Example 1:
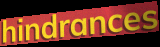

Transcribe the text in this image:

hindrances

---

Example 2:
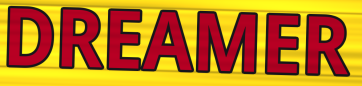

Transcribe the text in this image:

DREAMER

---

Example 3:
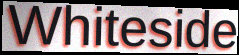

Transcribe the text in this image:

Whiteside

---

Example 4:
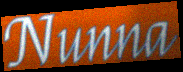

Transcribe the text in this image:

Nunna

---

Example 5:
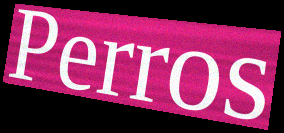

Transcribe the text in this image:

Perros